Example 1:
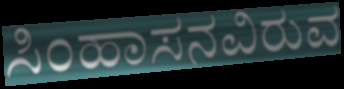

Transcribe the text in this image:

ಸಿಂಹಾಸನವಿರುವ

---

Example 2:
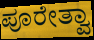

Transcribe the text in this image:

ಪೂರೇತ್ವಾ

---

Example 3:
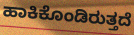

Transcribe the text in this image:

ಹಾಕಿಕೊಂಡಿರುತ್ತದೆ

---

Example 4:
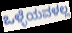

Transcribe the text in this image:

ಒಳ್ಳೆಯವಳಲ್ಲ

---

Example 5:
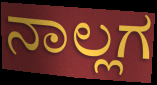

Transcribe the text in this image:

ನಾಲ್ಲಗ